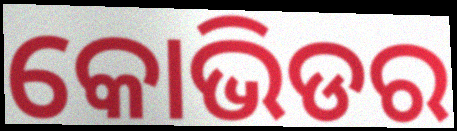
କୋଭିଡର